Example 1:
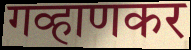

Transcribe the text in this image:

गव्हाणकर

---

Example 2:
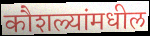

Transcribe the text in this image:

कौशल्यांमधील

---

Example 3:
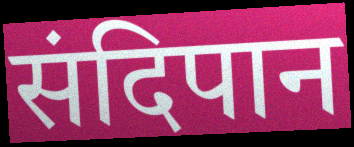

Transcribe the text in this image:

संदिपान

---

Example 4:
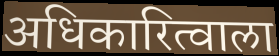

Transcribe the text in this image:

अधिकारित्वाला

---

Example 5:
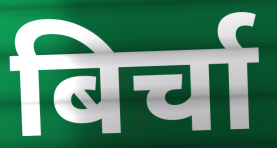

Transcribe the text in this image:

बिर्चा